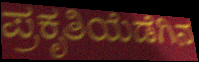
ಪ್ರಕೃತಿಯೆಡೆಗಿನ